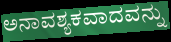
ಅನಾವಶ್ಯಕವಾದವನ್ನು